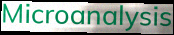
Microanalysis